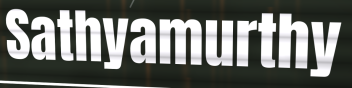
Sathyamurthy